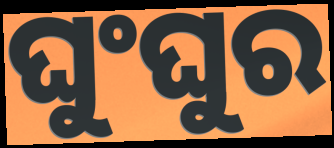
ଘୁଂଘୁର